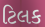
ટિલક